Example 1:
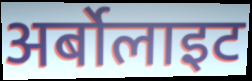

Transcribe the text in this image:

अर्बोलाइट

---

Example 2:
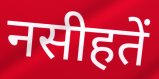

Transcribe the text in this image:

नसीहतें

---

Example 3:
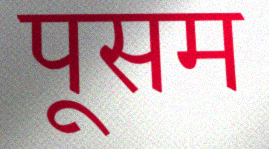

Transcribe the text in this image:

पूसम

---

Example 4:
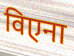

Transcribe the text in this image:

विएना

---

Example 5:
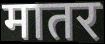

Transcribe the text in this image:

मातर